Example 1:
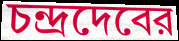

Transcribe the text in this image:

চন্দ্রদেবের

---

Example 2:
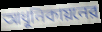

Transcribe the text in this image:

আধুনিকায়নের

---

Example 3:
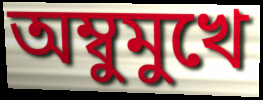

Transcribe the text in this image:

অম্বুমুখে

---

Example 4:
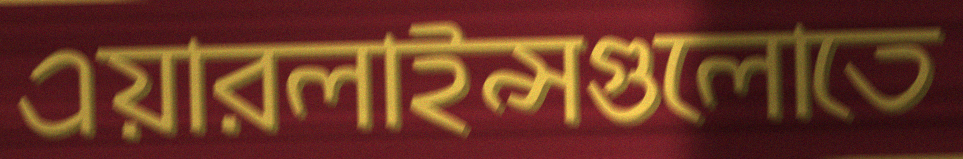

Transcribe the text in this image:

এয়ারলাইন্সগুলোতে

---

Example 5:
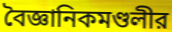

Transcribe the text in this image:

বৈজ্ঞানিকমণ্ডলীর